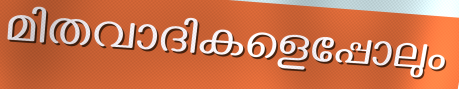
മിതവാദികളെപ്പോലും